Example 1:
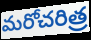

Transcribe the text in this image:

మరోచరిత్ర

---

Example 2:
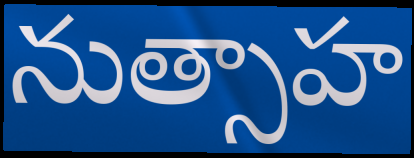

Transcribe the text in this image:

నుత్సాహ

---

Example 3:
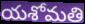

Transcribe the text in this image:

యశోమతి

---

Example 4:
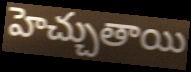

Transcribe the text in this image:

హెచ్చుతాయి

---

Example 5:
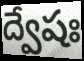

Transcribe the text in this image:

ద్వేషః